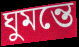
ঘুমন্তে